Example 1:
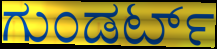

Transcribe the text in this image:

ಗುಂಡರ್ಟ್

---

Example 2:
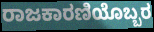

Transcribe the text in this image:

ರಾಜಕಾರಣಿಯೊಬ್ಬರ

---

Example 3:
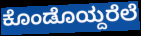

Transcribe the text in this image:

ಕೊಂಡೊಯ್ದರೆಲೆ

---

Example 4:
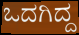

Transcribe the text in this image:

ಒದಗಿದ್ದ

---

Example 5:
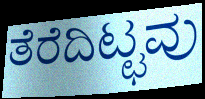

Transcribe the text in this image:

ತೆರೆದಿಟ್ಟವು